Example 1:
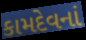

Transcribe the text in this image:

કામદેવનાં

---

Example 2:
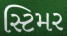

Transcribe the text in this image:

સ્ટિમર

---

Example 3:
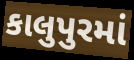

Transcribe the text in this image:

કાલુપુરમાં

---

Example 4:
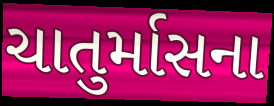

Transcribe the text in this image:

ચાતુર્માસના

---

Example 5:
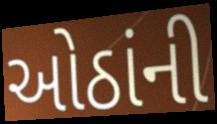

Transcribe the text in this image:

ઓઠાંની